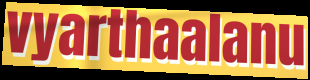
vyarthaalanu